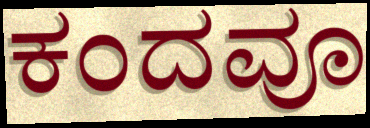
ಕಂದವೂ